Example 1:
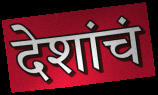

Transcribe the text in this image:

देशांचं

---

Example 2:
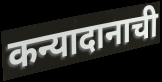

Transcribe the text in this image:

कन्यादानाची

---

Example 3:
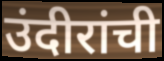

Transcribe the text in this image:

उंदीरांची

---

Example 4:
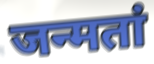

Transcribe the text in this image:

जन्मतां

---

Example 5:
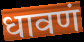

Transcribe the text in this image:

धावणं